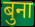
बुना